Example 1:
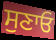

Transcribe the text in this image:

ਸੁਣਾਓ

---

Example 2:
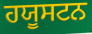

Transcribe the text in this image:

ਹਯੂਸਟਨ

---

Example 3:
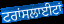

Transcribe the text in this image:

ਟਰਾਂਸਲਾਈਟਾਂ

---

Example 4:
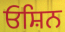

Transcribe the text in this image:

ਓਸ਼ਿਨ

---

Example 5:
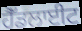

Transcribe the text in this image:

ਹੈੱਡਲਾਈਟ